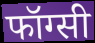
फॉग्सी